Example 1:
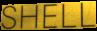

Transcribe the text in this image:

SHELL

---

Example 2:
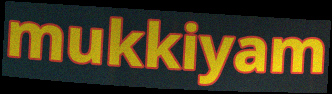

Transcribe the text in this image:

mukkiyam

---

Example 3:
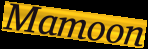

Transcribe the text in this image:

Mamoon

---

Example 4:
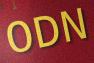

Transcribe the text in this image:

ODN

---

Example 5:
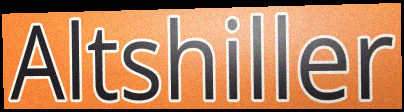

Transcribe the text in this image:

Altshiller